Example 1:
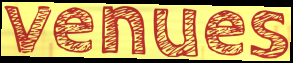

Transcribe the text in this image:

venues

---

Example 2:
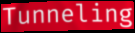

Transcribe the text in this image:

Tunneling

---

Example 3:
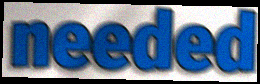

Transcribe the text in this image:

needed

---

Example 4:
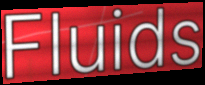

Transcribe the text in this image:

Fluids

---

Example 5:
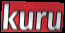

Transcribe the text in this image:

kuru